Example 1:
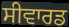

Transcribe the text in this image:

ਸੀਵਾਰਡ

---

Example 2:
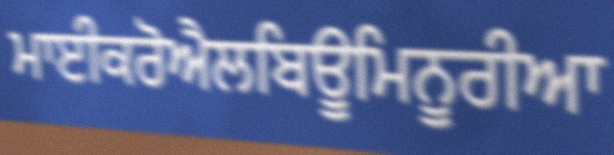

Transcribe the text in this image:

ਮਾਈਕਰੋਐਲਬਿਊਮਿਨੂਰੀਆ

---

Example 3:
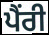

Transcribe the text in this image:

ਪੈਂਰੀ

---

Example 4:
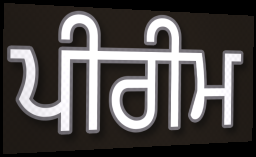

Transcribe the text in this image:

ਪੀਰੀਮ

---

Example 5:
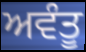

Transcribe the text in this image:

ਅਵੰਤੂ